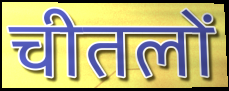
चीतलों